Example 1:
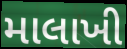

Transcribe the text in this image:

માલાખી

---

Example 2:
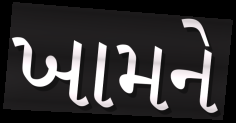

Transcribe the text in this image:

ખામને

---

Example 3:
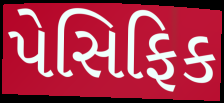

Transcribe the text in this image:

પેસિફિક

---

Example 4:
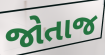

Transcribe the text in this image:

જોતાજ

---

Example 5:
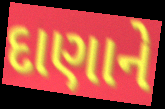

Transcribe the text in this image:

દાણાને